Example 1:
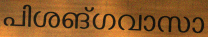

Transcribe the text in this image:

പിശങ്ഗവാസാ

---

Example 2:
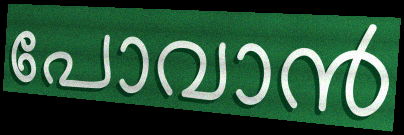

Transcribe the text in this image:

പോവാൻ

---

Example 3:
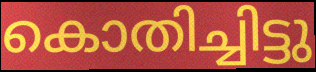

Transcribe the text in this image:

കൊതിച്ചിട്ടു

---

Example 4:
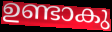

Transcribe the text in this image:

ഉണ്ടാകു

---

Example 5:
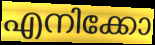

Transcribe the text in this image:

എനിക്കോ